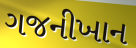
ગજનીખાન